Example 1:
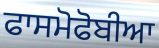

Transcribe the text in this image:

ਫਾਸਮੋਫੋਬੀਆ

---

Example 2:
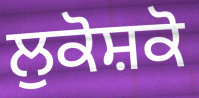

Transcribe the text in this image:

ਲੁਕੋਸ਼ਕੋ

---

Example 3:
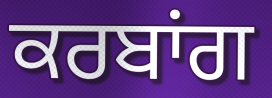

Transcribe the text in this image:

ਕਰਬਾਂਗ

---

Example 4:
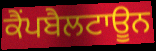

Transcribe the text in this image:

ਕੈਂਪਬੈਲਟਾਊਨ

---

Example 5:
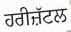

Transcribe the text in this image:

ਹਰੀਜ਼ੱਟਲ